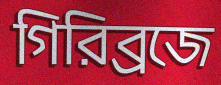
গিরিব্রজে